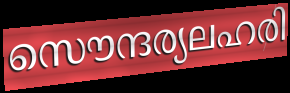
സൌന്ദര്യലഹരി